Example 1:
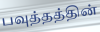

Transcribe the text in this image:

பவுத்தத்தின்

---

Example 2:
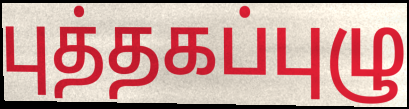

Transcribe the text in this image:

புத்தகப்புழு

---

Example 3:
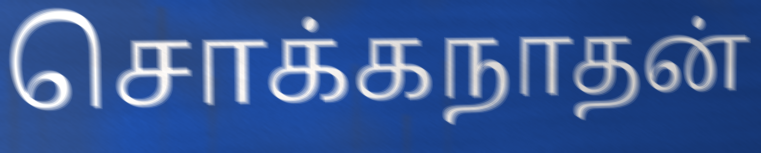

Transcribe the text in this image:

சொக்கநாதன்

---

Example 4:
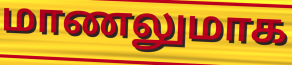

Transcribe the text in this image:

மாணலுமாக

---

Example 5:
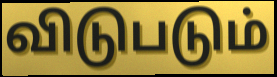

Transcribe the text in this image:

விடுபடும்